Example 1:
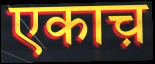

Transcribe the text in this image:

एकाच़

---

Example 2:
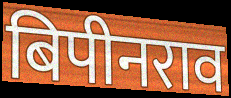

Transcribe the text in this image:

बिपीनराव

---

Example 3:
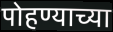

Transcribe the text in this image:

पोहण्याच्या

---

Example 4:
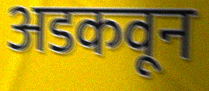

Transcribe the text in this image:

अडकवून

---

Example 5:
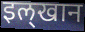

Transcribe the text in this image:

इल्खान